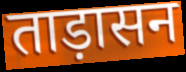
ताड़ासन